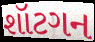
શૉટગન